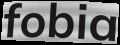
fobia